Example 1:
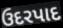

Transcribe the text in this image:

ઉદરપાદ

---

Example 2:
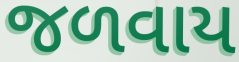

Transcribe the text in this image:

જળવાય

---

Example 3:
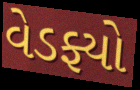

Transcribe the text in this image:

વેડફ્યો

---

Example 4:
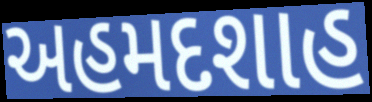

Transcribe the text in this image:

અહમદશાહ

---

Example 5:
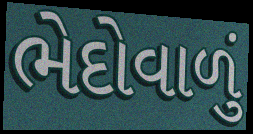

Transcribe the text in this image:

ભેદોવાળું